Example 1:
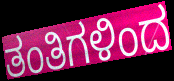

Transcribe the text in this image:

ತಂತಿಗಳಿಂದ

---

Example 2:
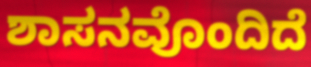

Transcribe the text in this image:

ಶಾಸನವೊಂದಿದೆ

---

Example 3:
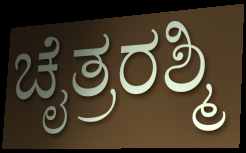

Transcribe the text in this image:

ಚೈತ್ರರಶ್ಮಿ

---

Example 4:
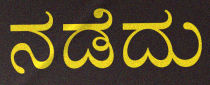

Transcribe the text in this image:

ನಡೆದು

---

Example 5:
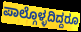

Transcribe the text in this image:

ಪಾಲ್ಗೊಳ್ಳದಿದ್ದರೂ